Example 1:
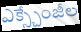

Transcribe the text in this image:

ఎక్స్చేంజీల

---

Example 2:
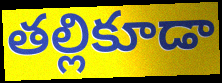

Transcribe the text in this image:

తల్లికూడా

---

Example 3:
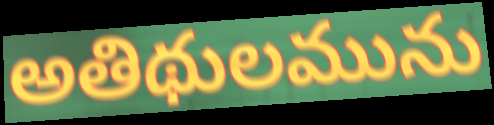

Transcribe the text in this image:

అతిథులమును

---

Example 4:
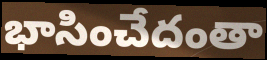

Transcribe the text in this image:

భాసించేదంతా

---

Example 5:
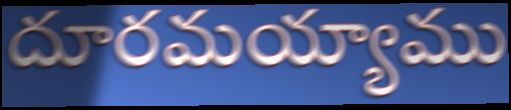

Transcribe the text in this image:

దూరమయ్యాము